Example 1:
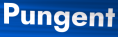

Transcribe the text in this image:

Pungent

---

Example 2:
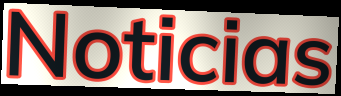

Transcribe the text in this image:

Noticias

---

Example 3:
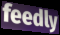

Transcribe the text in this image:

feedly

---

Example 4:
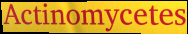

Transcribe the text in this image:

Actinomycetes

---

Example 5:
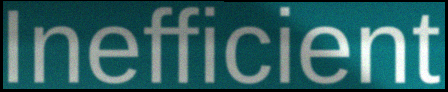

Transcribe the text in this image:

Inefficient